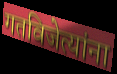
गतविजेत्यांना